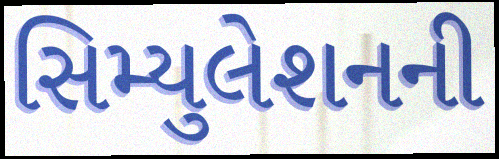
સિમ્યુલેશનની